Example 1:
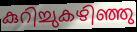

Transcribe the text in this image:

കുറിച്ചുകഴിഞ്ഞു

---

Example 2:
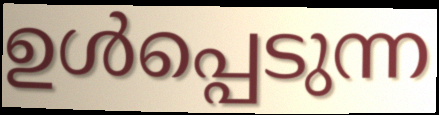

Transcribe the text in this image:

ഉൾപ്പെടുന്ന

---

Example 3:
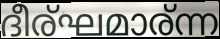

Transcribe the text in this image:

ദീര്ഘമാര്ന്ന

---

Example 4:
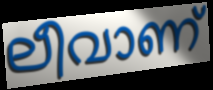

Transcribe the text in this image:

ലീവാണ്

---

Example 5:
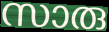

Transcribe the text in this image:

സാരു